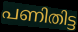
പണിതിട്ട